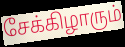
சேக்கிழாரும்